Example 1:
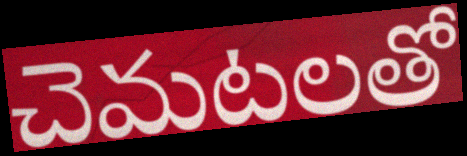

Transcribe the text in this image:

చెమటలతో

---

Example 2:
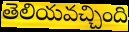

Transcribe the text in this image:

తెలియవచ్చింది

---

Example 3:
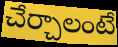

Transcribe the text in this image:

చేర్చాలంటే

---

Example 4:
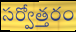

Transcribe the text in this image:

సర్వోత్తరం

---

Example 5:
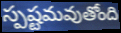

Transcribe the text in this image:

స్పష్టమవుతోంది